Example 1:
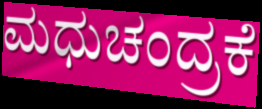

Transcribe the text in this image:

ಮಧುಚಂದ್ರಕೆ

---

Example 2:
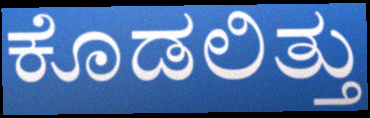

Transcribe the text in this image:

ಕೊಡಲಿತ್ತು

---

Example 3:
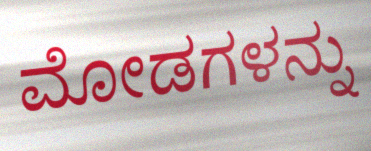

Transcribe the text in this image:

ಮೋಡಗಳನ್ನು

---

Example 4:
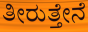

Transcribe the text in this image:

ತೀರುತ್ತೇನೆ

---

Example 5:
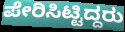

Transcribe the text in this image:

ಪೇರಿಸಿಟ್ಟಿದ್ದರು